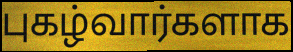
புகழ்வார்களாக